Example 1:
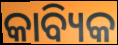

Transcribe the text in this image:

କାବ୍ୟିକ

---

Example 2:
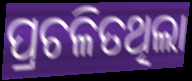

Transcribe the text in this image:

ପ୍ରଚଳିତଥିଲା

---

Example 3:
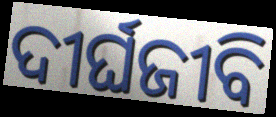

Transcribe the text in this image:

ଦୀର୍ଘଜୀବି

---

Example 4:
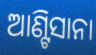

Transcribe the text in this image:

ଆଣ୍ଟିସାନା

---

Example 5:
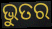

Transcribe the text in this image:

ଭୁତର